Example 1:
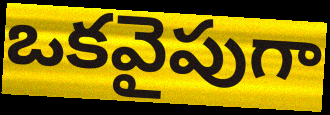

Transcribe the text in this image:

ఒకవైపుగా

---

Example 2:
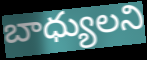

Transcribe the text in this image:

బాధ్యులని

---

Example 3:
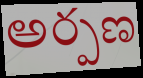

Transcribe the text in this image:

అర్పణ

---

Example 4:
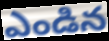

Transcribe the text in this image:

ఎండిన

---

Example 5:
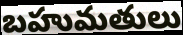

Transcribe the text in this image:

బహుమతులు